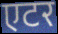
एटर